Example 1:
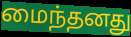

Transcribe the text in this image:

மைந்தனது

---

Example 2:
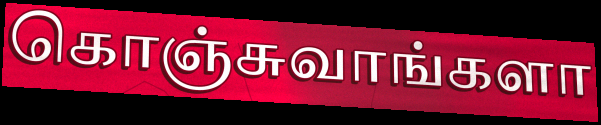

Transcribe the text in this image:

கொஞ்சுவாங்களா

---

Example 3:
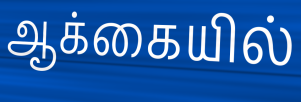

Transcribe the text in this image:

ஆக்கையில்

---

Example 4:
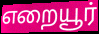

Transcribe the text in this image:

எறையூர்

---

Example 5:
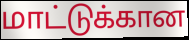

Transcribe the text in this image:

மாட்டுக்கான